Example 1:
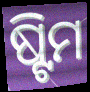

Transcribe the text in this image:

ଷ୍ଟିମ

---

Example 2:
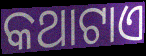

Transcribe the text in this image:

କଥାଟାଏ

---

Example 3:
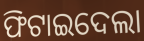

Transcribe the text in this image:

ଫିଟାଇଦେଲା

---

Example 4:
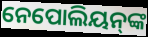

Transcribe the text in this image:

ନେପୋଲିୟନ୍‍ଙ୍କ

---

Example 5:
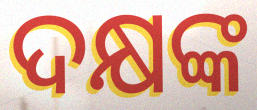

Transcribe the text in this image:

ଦକ୍ଷଙ୍କ